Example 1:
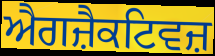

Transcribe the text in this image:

ਐਗਜ਼ੈਕਟਿਵਜ਼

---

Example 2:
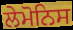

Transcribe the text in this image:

ਲੇਮੋਨਿਸ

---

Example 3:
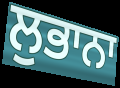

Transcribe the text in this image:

ਲੁਭਾਨਾ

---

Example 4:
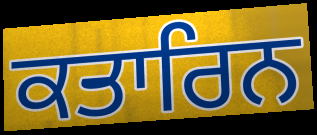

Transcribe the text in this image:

ਕਤਾਰਿਨ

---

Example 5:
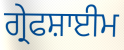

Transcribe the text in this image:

ਗ੍ਰੇਫਸ਼ਾਈਮ